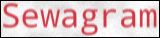
Sewagram